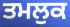
ਤਮਲੁਕ